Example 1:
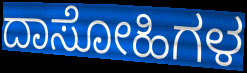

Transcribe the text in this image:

ದಾಸೋಹಿಗಳ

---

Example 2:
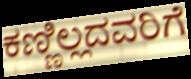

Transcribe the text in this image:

ಕಣ್ಣಿಲ್ಲದವರಿಗೆ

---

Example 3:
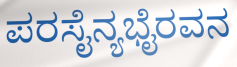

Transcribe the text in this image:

ಪರಸೈನ್ಯಭೈರವನ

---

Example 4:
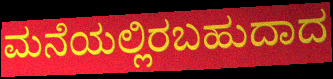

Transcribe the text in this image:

ಮನೆಯಲ್ಲಿರಬಹುದಾದ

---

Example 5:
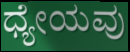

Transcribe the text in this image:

ಧ್ಯೇಯವು